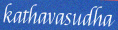
kathavasudha